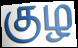
குழ